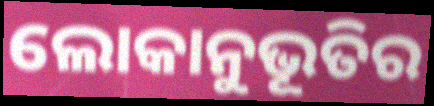
ଲୋକାନୁଭୂତିର